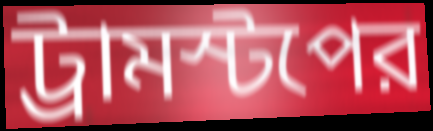
ট্রামস্টপের